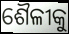
ଶୈଳୀକୁ